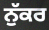
ਨੁੱਕਰ